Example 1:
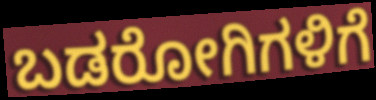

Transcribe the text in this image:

ಬಡರೋಗಿಗಳಿಗೆ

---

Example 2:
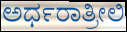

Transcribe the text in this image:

ಅರ್ಧರಾತ್ರೀಲಿ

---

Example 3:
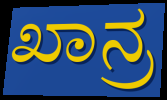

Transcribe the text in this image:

ಖಾನ್ರ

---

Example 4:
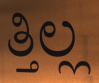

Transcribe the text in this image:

ತ್ತಿಲ್ಲ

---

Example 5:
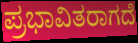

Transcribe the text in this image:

ಪ್ರಭಾವಿತರಾಗದೆ